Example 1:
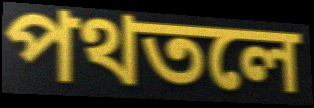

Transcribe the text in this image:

পথতলে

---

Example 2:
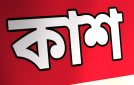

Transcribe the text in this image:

কাশ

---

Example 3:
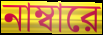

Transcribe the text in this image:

নাম্বারে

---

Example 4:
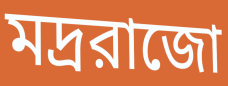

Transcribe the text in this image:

মদ্ররাজো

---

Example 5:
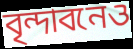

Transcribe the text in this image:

বৃন্দাবনেও